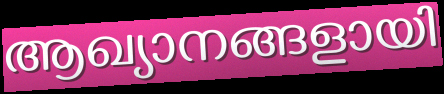
ആഖ്യാനങ്ങളായി